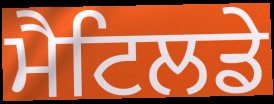
ਮੈਟਿਲਡੇ